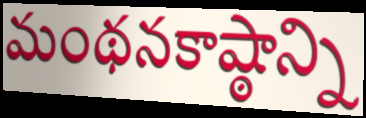
మంథనకాష్ఠాన్ని